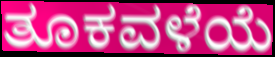
ತೂಕವಳೆಯೆ